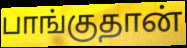
பாங்குதான்